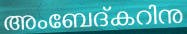
അംബേദ്കറിനു